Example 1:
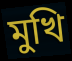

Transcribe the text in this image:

মুখি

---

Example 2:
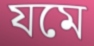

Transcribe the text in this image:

যমে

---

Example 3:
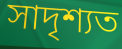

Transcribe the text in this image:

সাদৃশ্যত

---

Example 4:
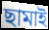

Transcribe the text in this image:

ছামাই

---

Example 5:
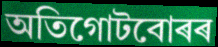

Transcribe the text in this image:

অতিগোটবোৰৰ